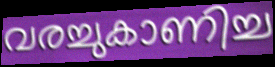
വരച്ചുകാണിച്ച